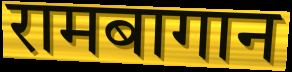
रामबागान